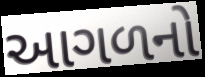
આગળનો